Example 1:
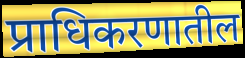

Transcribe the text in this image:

प्राधिकरणातील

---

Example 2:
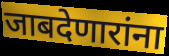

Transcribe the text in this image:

जाबदेणारांना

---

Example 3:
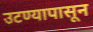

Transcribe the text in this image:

उटण्यापासून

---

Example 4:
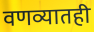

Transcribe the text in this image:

वणव्यातही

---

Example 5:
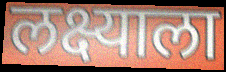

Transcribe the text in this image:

लक्ष्याला